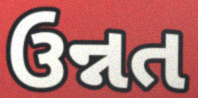
ઉન્નત